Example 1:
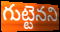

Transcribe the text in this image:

గుట్టెనని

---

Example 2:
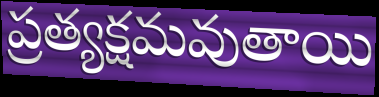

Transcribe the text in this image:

ప్రత్యక్షమవుతాయి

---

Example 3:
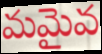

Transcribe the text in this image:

మమైవ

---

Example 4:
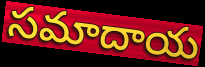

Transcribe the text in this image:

సమాదాయ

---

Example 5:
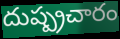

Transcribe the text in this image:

దుష్ప్రచారం